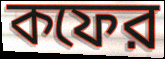
কফের